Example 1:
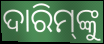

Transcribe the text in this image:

ଦାରିମ୍‍ଙ୍କୁ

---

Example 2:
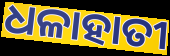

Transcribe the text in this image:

ଧଳାହାତୀ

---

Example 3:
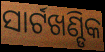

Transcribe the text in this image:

ସାର୍ଟଖଣ୍ଡିକ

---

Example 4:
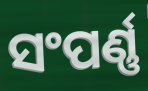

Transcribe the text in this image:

ସଂପର୍ଣ୍ଣ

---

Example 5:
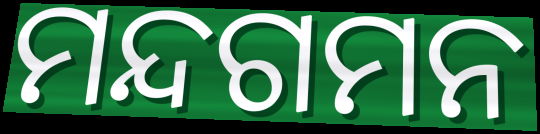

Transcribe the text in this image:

ମନ୍ଦଗମନ